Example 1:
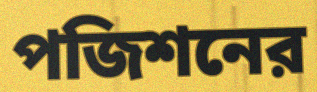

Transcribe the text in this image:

পজিশনের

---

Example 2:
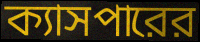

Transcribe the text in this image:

ক্যাসপারের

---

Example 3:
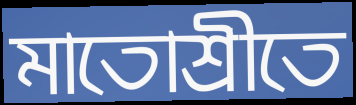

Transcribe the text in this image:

মাতোশ্রীতে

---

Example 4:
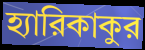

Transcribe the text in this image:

হ্যারিকাকুর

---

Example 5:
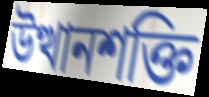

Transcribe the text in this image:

উত্থানশক্তি